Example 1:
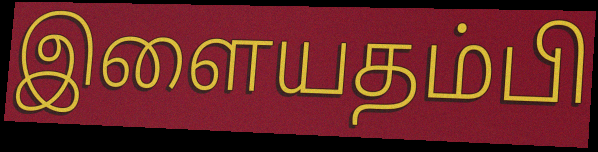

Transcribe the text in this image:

இளையதம்பி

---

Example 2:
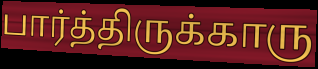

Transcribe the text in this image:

பார்த்திருக்காரு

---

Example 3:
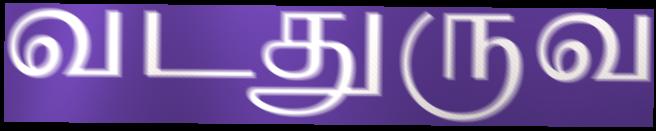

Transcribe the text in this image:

வடதுருவ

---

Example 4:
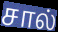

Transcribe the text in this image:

சால்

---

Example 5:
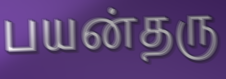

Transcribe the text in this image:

பயன்தரு